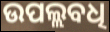
ଉପଲ୍ଲବଧି